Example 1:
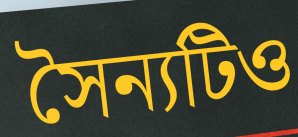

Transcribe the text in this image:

সৈন্যটিও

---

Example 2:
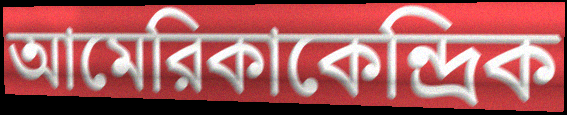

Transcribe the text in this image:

আমেরিকাকেন্দ্রিক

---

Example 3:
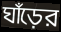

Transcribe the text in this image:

ঘাঁড়ের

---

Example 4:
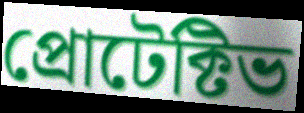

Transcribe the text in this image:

প্রোটেক্টিভ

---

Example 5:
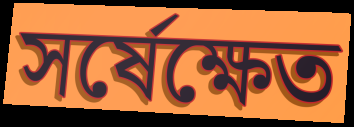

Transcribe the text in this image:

সর্ষেক্ষেত